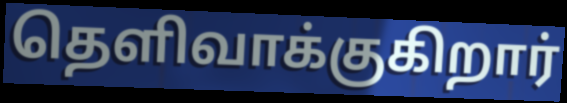
தெளிவாக்குகிறார்